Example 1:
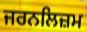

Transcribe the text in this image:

ਜਰਨਲਿਜ਼ਮ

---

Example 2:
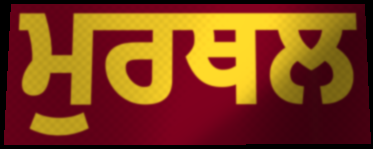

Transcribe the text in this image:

ਮੁਰਥਲ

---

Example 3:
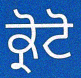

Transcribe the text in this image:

ਕ੍ਰੋਟੋ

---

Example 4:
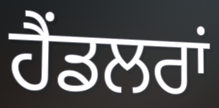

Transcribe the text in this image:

ਹੈਂਡਲਰਾਂ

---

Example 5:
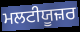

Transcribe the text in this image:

ਮਲਟੀਯੂਜ਼ਰ